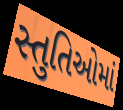
સ્તુતિઓમાં